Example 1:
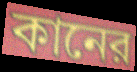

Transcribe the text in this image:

কানের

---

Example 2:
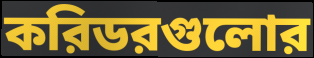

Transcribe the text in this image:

করিডরগুলোর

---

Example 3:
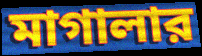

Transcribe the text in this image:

মাগালার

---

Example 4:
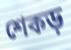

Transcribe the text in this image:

শেকড়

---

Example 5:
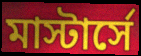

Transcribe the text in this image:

মাস্টার্সে